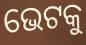
ଭେଟକୁ